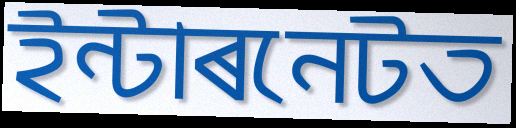
ইন্টাৰনেটত